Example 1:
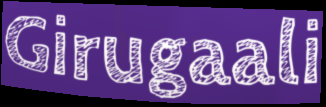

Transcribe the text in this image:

Girugaali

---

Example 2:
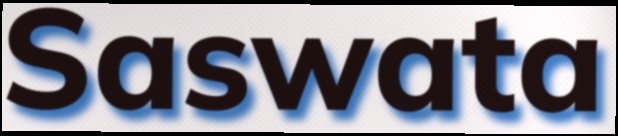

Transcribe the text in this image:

Saswata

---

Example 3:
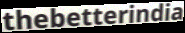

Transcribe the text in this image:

thebetterindia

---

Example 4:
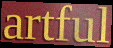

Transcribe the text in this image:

artful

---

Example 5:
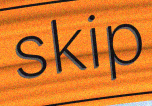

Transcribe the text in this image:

skip